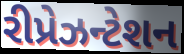
રીપ્રેઝન્ટેશન